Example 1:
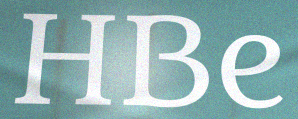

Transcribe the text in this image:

HBe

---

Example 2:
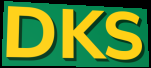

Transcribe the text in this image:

DKS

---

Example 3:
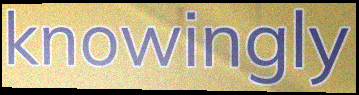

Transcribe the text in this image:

knowingly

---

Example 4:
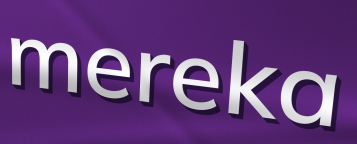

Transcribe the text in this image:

mereka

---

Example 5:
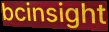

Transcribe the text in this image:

bcinsight